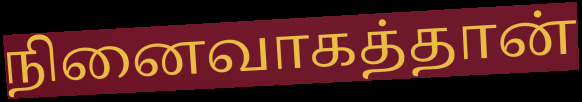
நினைவாகத்தான்